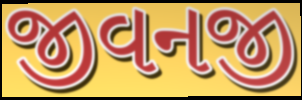
જીવનજી